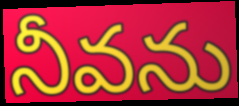
నీవను